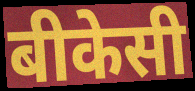
बीकेसी